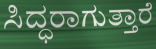
ಸಿದ್ಧರಾಗುತ್ತಾರೆ